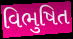
વિભુષિત